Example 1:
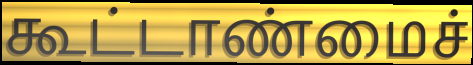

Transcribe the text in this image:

கூட்டாண்மைச்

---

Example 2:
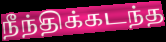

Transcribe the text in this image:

நீந்திக்கடந்த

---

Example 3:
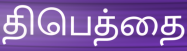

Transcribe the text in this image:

திபெத்தை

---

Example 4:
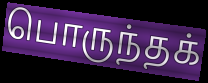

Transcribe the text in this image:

பொருந்தக்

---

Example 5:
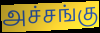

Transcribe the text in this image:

அச்சங்கு